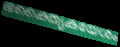
ഭക്ത്യൈകയേശം